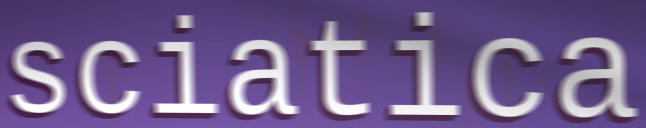
sciatica